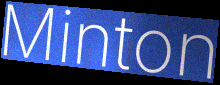
Minton